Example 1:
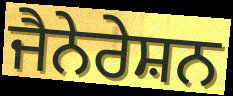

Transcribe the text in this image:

ਜੈਨੇਰੇਸ਼ਨ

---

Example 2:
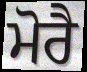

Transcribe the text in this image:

ਮੋਰੈ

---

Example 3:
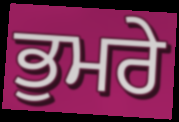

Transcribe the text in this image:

ਭੁਮਰੇ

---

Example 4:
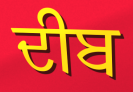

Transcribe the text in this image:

ਦੀਬ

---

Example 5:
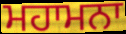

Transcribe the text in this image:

ਮਹਾਮਨਾ